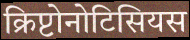
क्रिप्टोनोटिसियस